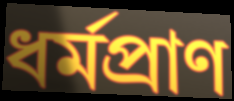
ধৰ্মপ্ৰাণ